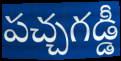
పచ్చగడ్డీ